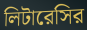
লিটারেসির